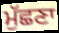
ਮੁੱਛਣਾ